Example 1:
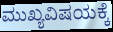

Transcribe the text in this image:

ಮುಖ್ಯವಿಷಯಕ್ಕೆ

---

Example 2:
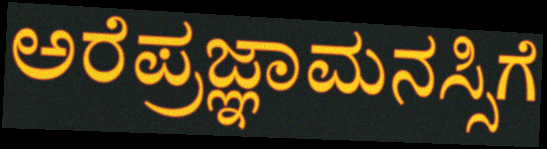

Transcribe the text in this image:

ಅರೆಪ್ರಜ್ಞಾಮನಸ್ಸಿಗೆ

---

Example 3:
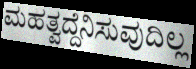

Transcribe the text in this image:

ಮಹತ್ವದ್ದೆನಿಸುವುದಿಲ್ಲ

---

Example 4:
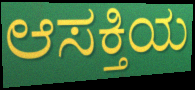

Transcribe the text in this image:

ಆಸಕ್ತಿಯ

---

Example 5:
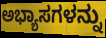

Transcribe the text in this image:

ಅಭ್ಯಾಸಗಳನ್ನು